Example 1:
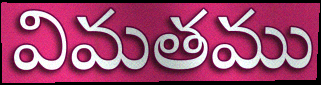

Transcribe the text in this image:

విమతము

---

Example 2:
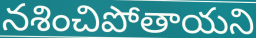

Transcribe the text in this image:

నశించిపోతాయని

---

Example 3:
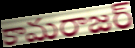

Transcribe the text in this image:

కామరాజర్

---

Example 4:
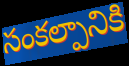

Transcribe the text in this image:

సంకల్పానికి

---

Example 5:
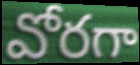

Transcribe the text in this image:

వోరగా